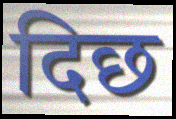
दिछ